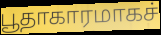
பூதாகாரமாகச்